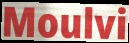
Moulvi